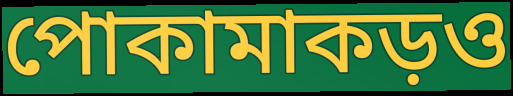
পোকামাকড়ও